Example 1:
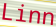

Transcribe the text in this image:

Linn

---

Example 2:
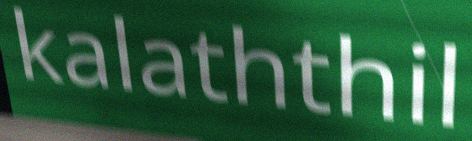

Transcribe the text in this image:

kalaththil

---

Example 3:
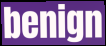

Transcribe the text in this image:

benign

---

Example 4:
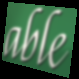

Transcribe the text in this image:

able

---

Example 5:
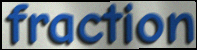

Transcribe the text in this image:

fraction